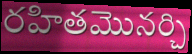
రహితమొనర్చి